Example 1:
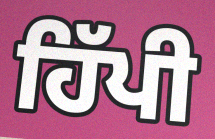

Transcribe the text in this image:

ਹਿੱਪੀ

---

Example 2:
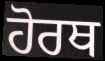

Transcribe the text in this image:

ਹੋਰਥ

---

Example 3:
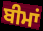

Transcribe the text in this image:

ਬੀਮਾਂ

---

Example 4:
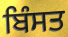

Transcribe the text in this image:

ਬਿੰਸਤ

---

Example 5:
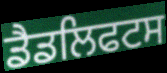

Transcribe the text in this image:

ਡੈਡਲਿਫਟਸ